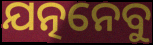
ଯତ୍ନନେବୁ